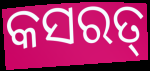
କସରତ୍